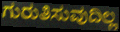
ಗುರುತಿಸುವುದಿಲ್ಲ